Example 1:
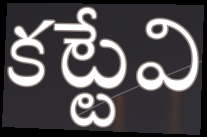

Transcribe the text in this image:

కట్టేవి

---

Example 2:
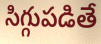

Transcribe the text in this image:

సిగ్గుపడితే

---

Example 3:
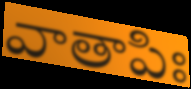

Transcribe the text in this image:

వాతాపిః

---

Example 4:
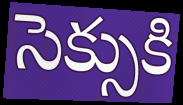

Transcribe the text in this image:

సెక్సుకి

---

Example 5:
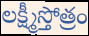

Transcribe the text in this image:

లక్ష్మీస్తోత్రం